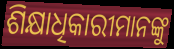
ଶିକ୍ଷାଧିକାରୀମାନଙ୍କୁ